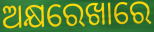
ଅକ୍ଷରେଖାରେ